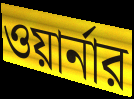
ওয়ার্নার